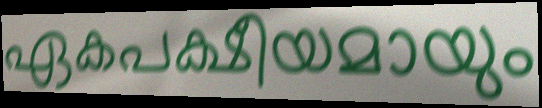
ഏകപക്ഷീയമായും